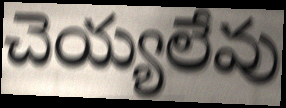
చెయ్యలేవు